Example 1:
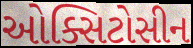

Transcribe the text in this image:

ઓક્સિટોસીન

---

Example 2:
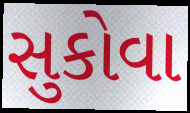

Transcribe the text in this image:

સુકોવા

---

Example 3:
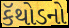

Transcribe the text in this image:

કૅથોડનો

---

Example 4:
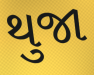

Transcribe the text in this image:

થુજા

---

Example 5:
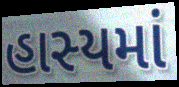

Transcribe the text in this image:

હાસ્યમાં